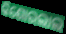
କିଶୋରଲାଲ